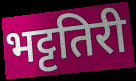
भट्टतिरी